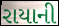
રાયાની